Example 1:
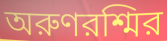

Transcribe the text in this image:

অরুণরশ্মির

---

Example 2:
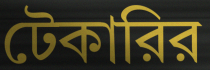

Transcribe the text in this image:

টেকারির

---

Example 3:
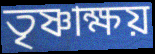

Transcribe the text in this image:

তৃষ্ণাক্ষয়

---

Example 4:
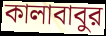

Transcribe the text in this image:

কালাবাবুর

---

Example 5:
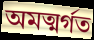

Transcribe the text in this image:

অমত্মর্গত